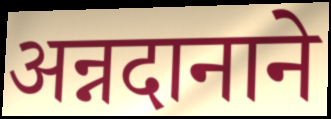
अन्नदानाने